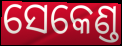
ସେକେଣ୍ଡ